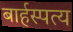
बार्हस्पत्य